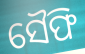
ସୈଫି